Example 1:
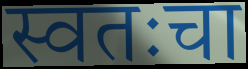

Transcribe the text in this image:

स्वतःचा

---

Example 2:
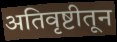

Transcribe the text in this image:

अतिवृष्टीतून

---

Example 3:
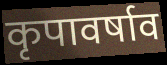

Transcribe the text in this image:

कृपावर्षाव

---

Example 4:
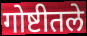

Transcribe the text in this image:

गोष्टीतले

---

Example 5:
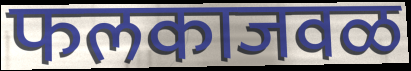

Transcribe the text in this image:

फलकाजवळ